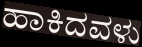
ಹಾಕಿದವಳು